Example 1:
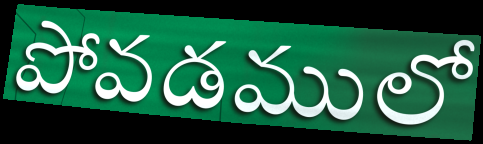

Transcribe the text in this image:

పోవడములో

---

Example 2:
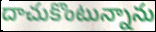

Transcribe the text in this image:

దాచుకొంటున్నాను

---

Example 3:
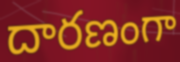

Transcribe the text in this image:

దారణంగా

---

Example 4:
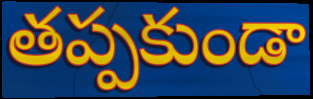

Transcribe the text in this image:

తప్పకుండా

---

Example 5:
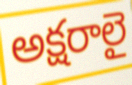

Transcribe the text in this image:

అక్షరాలై